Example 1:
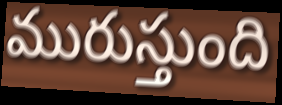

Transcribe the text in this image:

మురుస్తుంది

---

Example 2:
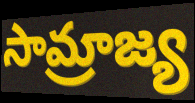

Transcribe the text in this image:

సామ్రాజ్య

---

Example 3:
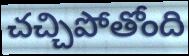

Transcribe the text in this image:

చచ్చిపోతోంది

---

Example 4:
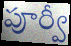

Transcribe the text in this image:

పూర్వీ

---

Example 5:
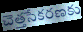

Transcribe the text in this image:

చెత్తసేకరణకు